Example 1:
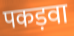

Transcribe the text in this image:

पकड़वा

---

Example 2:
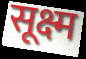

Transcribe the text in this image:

सूक्ष्‍म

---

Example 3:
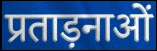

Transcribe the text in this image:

प्रताड़नाओं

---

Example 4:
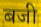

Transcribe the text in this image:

बजी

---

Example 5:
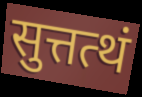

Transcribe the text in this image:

सुत्तत्थं